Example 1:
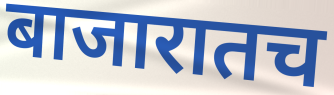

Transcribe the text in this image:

बाजारातच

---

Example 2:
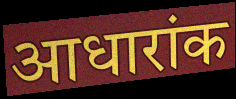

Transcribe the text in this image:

आधारांक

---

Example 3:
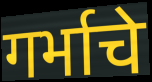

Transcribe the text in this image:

गर्भाचे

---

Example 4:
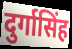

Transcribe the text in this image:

दुर्गासिंह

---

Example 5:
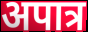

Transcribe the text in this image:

अपात्र